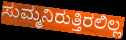
ಸುಮ್ಮನಿರುತ್ತಿರಲಿಲ್ಲ